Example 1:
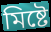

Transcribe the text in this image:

মিষ্টে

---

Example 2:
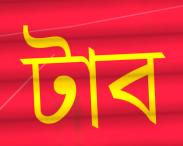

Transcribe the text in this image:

টাব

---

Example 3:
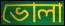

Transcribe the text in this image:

ভোলা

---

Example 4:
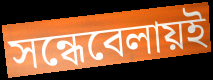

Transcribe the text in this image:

সন্ধেবেলায়ই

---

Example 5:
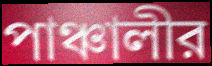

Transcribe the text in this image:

পাঞ্চালীর